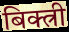
बिक्त्री